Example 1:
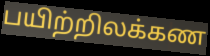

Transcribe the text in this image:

பயிற்றிலக்கண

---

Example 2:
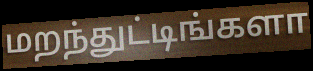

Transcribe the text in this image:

மறந்துட்டிங்களா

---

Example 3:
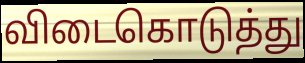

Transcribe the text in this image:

விடைகொடுத்து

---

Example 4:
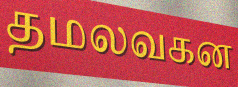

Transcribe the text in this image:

தமலவகன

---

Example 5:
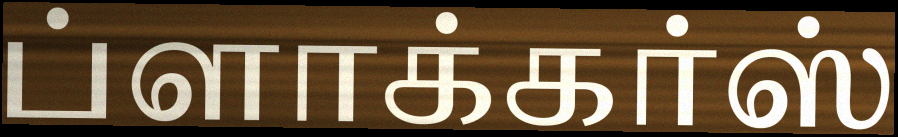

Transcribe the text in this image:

ப்ளாக்கர்ஸ்